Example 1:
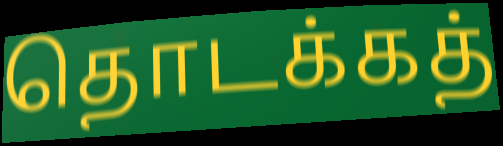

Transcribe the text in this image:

தொடக்கத்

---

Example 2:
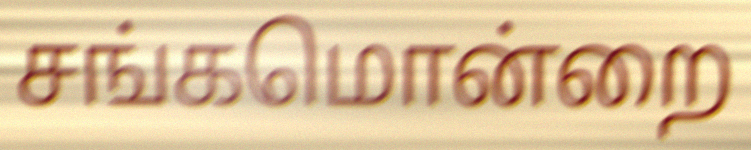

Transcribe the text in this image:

சங்கமொன்றை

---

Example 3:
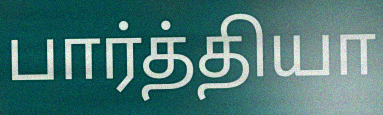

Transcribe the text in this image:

பார்த்தியா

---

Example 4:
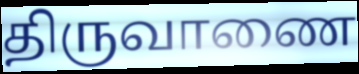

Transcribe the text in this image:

திருவாணை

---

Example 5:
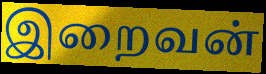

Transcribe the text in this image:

இறைவன்